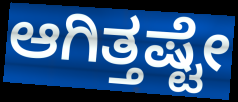
ಆಗಿತ್ತಷ್ಟೇ